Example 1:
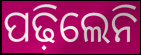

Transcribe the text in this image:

ପଢ଼ିଲେନି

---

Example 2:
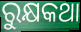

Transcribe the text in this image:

ରୁକ୍ଷକଥା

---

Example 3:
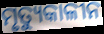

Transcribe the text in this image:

ମୃତ୍ୟୁକାଳୀନ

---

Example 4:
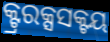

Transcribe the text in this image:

କ୍ଟ୍ରରକ୍ସସକ୍ଟୟ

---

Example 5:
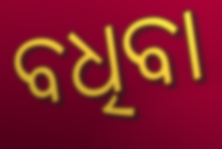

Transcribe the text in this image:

ବଧିବା